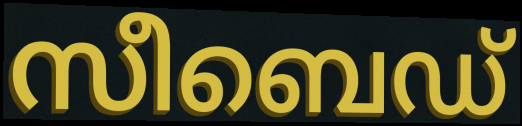
സീബെഡ്